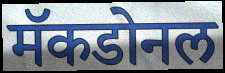
मॅकडोनल